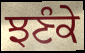
ਝਣੰਕੇ